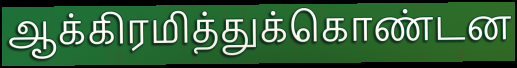
ஆக்கிரமித்துக்கொண்டன